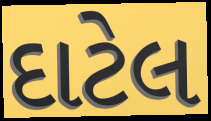
દાટેલ